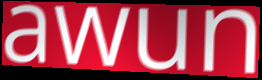
awun